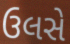
ઉલસે